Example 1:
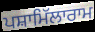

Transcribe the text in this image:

ਪਸ਼ਾਮਿੱਲਾਰਾਮ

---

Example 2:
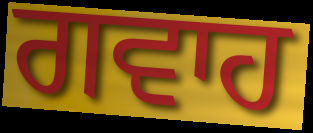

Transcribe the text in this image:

ਗਵਾਹ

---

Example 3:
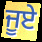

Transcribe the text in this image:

ਜੂਏ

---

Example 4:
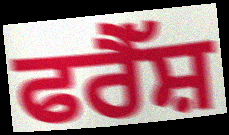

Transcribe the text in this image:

ਫਰੈੱਸ਼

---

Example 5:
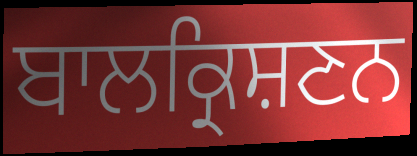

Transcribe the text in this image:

ਬਾਲਕ੍ਰਿਸ਼ਣਨ